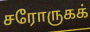
சரோருகக்